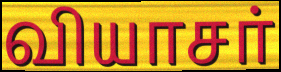
வியாசர்